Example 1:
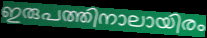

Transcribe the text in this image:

ഇരുപത്തിനാലായിരം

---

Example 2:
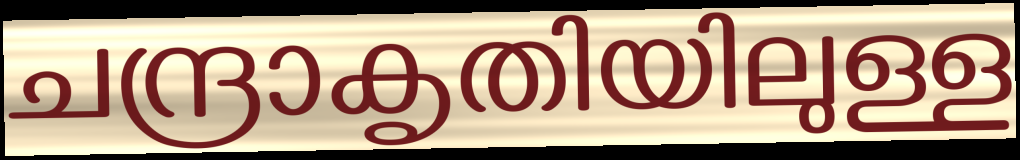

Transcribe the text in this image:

ചന്ദ്രാകൃതിയിലുള്ള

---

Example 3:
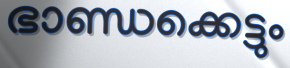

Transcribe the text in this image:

ഭാണ്ഡക്കെട്ടും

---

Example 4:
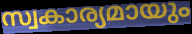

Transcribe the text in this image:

സ്വകാര്യമായും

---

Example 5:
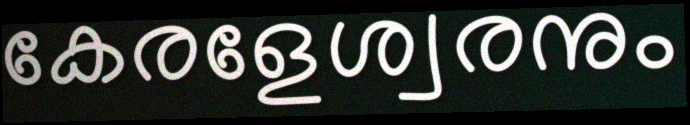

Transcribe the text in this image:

കേരളേശ്വരനും